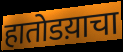
हातोडय़ाचा